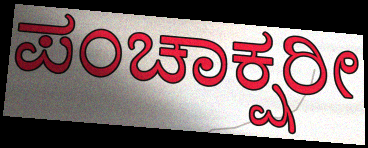
ಪಂಚಾಕ್ಷರೀ